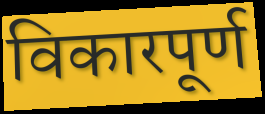
विकारपूर्ण